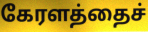
கேரளத்தைச்